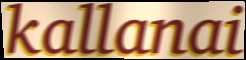
kallanai